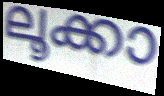
ലൂക്കാ